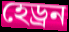
হেড্ৰন